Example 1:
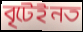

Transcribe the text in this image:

বৃটেইনত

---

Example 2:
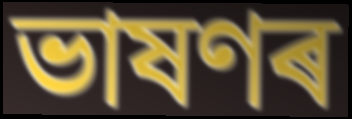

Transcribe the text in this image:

ভাষণৰ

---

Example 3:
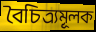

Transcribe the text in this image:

বৈচিত্ৰ্যমূলক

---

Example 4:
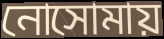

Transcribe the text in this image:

নোসোমায়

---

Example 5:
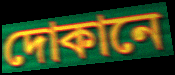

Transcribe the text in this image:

দোকানে